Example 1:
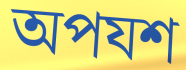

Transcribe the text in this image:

অপযশ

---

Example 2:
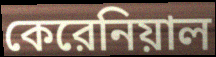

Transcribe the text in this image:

কেরেনিয়াল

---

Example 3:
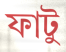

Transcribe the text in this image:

ফাটু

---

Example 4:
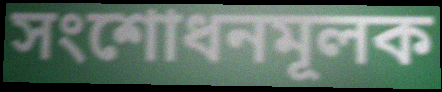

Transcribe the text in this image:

সংশোধনমূলক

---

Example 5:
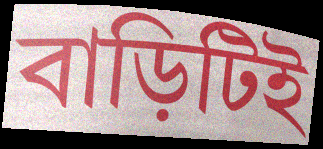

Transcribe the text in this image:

বাড়িটিই